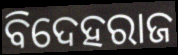
ବିଦେହରାଜ